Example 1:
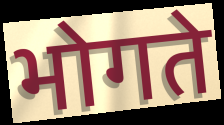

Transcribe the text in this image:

भोगते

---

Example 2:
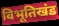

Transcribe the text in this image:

विभूतिखंड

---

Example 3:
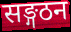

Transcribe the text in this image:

सङ्गठन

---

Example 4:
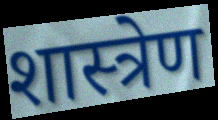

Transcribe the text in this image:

शास्त्रेण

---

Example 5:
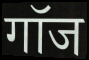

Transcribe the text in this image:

गॉज